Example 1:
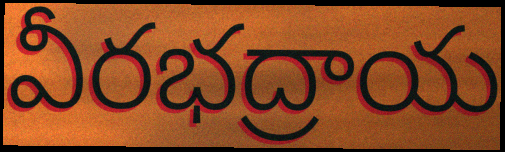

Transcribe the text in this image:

వీరభద్రాయ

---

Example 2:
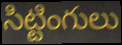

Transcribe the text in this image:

సిట్టింగులు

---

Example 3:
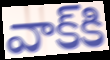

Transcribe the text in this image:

వాక్‌కి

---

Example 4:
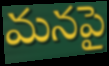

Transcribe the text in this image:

మనపై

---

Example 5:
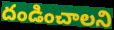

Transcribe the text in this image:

దండించాలని